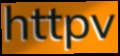
httpv